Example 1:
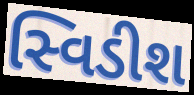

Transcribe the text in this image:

સ્વિડીશ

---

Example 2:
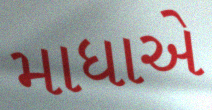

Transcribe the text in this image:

માધાએ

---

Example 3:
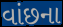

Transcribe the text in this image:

વાંછના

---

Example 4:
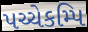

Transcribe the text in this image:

પચ્ચેકમ્પિ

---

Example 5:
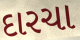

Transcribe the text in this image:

દારચા